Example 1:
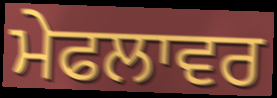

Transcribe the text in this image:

ਮੇਫਲਾਵਰ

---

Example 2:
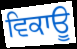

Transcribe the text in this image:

ਵਿਕਾਊ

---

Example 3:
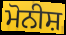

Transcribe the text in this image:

ਮੋਨੀਸ਼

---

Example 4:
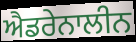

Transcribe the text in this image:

ਐਡਰੇਨਾਲੀਨ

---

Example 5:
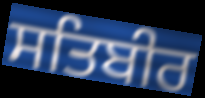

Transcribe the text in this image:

ਸਤਿਬੀਰ